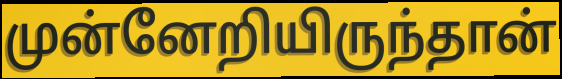
முன்னேறியிருந்தான்